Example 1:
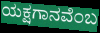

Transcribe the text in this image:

ಯಕ್ಷಗಾನವೆಂಬ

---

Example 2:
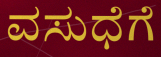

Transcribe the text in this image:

ವಸುಧೆಗೆ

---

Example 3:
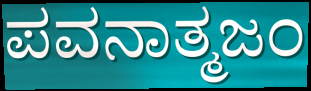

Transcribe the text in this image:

ಪವನಾತ್ಮಜಂ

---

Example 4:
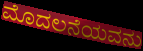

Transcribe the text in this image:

ಮೊದಲನೆಯವನು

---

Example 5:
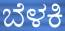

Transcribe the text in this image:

ಬೆಳಕಿ